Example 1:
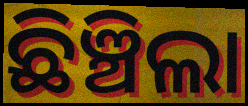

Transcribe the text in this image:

ଛିଞ୍ଚିଲା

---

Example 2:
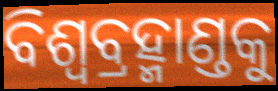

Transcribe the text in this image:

ବିଶ୍ବବ୍ରହ୍ମାଣ୍ଡକୁ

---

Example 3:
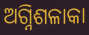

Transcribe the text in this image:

ଅଗ୍ନିଶଳାକା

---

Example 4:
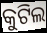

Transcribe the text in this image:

କୁଟିଲ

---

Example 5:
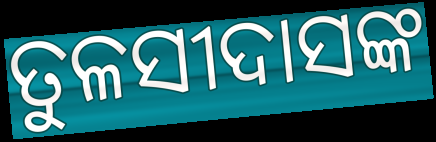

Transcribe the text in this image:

ତୁଳସୀଦାସଙ୍କ